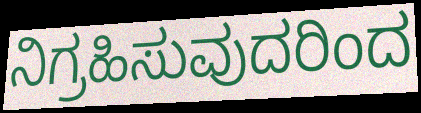
ನಿಗ್ರಹಿಸುವುದರಿಂದ